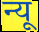
न्यू